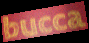
bucca